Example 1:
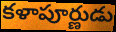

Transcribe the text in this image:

కళాపూర్ణుడు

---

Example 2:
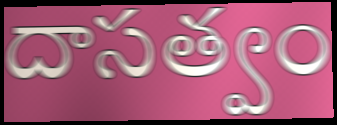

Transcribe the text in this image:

దాసత్వం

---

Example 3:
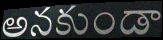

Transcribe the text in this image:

అనకుండా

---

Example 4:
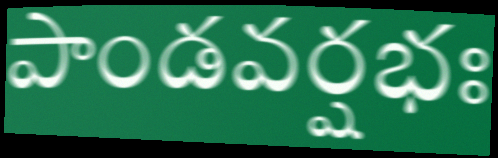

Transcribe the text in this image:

పాండవర్షభః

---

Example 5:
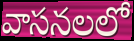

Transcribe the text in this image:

వాసనలలో